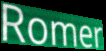
Romer